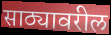
साठ्यावरील